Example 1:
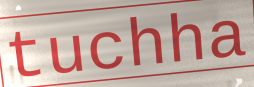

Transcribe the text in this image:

tuchha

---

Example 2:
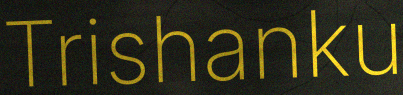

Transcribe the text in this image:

Trishanku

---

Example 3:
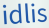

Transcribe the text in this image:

idlis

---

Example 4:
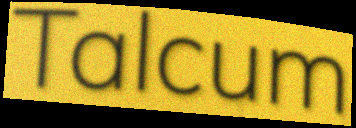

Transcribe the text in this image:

Talcum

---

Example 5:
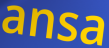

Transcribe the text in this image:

ansa